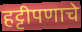
हट्टीपणाचे